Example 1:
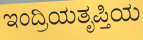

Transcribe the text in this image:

ಇಂದ್ರಿಯತೃಪ್ತಿಯ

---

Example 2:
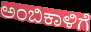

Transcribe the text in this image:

ಅಂಬಿಕಾಳಿಗೆ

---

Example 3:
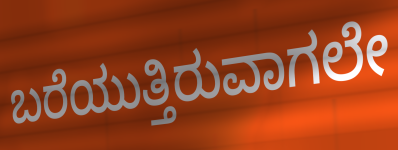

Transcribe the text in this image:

ಬರೆಯುತ್ತಿರುವಾಗಲೇ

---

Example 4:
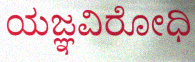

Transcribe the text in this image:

ಯಜ್ಞವಿರೋಧಿ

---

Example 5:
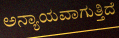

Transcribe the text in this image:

ಅನ್ಯಾಯವಾಗುತ್ತಿದೆ